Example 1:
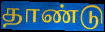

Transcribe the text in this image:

தாண்டு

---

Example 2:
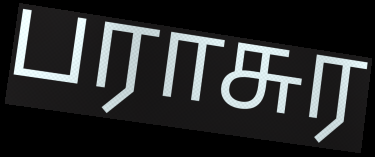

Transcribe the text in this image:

பராசுர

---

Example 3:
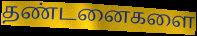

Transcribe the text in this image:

தண்டனைகளை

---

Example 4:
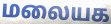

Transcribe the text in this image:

மலையக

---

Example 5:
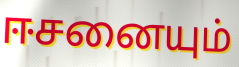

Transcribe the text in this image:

ஈசனையும்